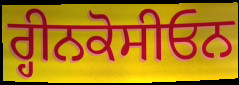
ਰ੍ਹੀਨਕੋਸੀਓਨ